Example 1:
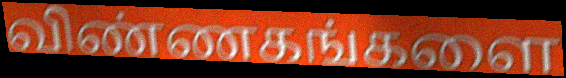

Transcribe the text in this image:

விண்ணகங்களை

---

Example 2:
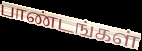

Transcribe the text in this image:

பாண்டங்கள்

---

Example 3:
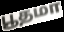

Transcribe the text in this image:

பூதமா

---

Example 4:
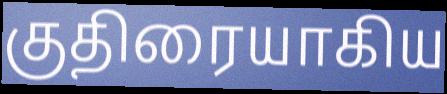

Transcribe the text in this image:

குதிரையாகிய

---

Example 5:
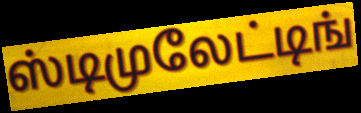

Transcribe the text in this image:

ஸ்டிமுலேட்டிங்